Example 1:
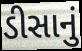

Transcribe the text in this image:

ડીસાનું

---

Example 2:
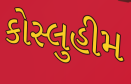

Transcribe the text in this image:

કોસ્લુહીમ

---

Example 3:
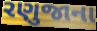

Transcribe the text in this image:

રણુજાના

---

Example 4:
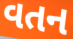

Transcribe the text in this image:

વતન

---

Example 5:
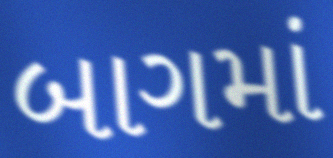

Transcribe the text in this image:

બાગમાં